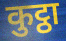
कुट्ठा